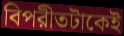
বিপরীতটাকেই